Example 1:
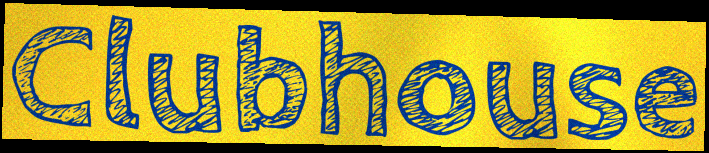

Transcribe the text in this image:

Clubhouse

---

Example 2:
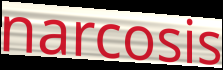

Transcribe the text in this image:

narcosis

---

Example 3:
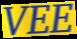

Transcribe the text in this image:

VEE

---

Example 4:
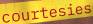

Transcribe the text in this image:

courtesies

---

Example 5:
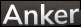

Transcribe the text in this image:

Anker